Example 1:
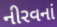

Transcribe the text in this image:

નીરવનાં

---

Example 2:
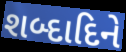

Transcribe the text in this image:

શબ્દાદિને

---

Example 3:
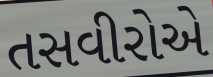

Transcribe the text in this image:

તસવીરોએ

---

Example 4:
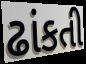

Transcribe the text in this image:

ઢાંકતી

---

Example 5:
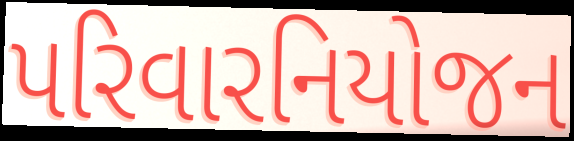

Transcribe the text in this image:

પરિવારનિયોજન